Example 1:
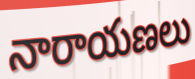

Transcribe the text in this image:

నారాయణలు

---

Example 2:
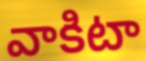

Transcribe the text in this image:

వాకిటా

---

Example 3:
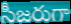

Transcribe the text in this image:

సీజరుగా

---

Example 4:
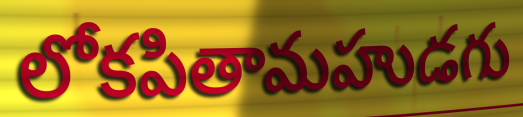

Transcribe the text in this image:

లోకపితామహుడగు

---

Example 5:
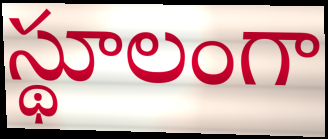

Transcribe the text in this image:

స్థూలంగా